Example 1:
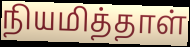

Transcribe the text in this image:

நியமித்தாள்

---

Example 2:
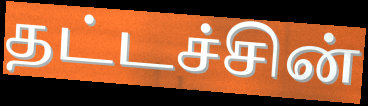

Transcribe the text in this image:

தட்டச்சின்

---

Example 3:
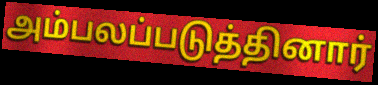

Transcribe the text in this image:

அம்பலப்படுத்தினார்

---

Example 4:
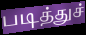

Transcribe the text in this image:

படித்துச்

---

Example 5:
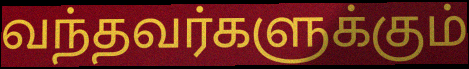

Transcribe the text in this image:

வந்தவர்களுக்கும்